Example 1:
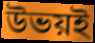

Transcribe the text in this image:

উভয়ই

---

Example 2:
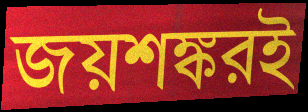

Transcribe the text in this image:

জয়শঙ্করই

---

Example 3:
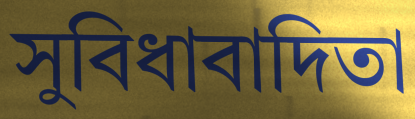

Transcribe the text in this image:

সুবিধাবাদিতা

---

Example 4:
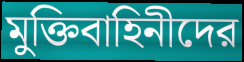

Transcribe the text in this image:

মুক্তিবাহিনীদের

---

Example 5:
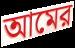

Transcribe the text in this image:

আমের